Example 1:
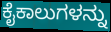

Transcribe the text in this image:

ಕೈಕಾಲುಗಳನ್ನು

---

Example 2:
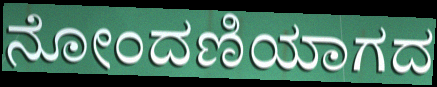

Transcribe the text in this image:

ನೋಂದಣಿಯಾಗದ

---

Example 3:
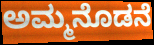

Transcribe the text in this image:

ಅಮ್ಮನೊಡನೆ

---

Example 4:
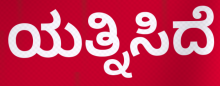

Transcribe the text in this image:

ಯತ್ನಿಸಿದೆ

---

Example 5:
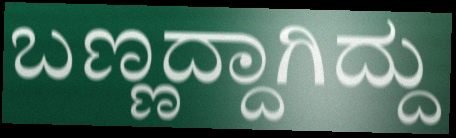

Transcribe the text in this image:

ಬಣ್ಣದ್ದಾಗಿದ್ದು